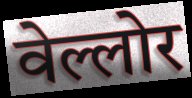
वेल्लोर